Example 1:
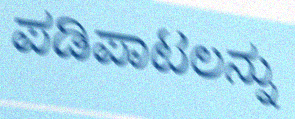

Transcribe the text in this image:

ಪಡಿಪಾಟಲನ್ನು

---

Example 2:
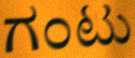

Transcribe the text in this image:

ಗಂಟು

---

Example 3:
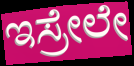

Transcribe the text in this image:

ಇಸ್ರೇಲೇ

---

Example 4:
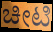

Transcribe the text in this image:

ಚೀಟಿ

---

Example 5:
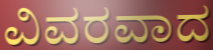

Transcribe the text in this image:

ವಿವರವಾದ